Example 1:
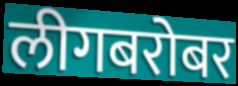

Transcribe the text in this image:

लीगबरोबर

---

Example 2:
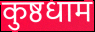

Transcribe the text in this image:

कुष्ठधाम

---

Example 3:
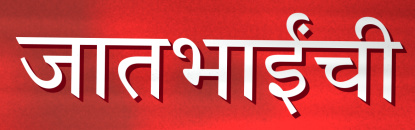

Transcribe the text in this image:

जातभाईंची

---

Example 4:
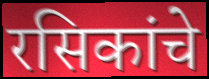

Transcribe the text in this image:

रसिकांचे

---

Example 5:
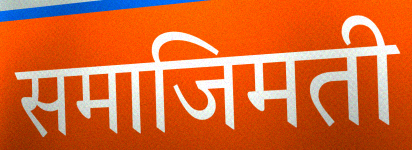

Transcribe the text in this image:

समाजिमती